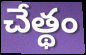
చేత్థం